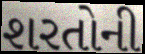
શરતોની